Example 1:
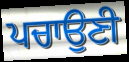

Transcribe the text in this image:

ਪਚਾਉਣੀ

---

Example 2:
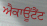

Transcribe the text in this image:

ਐਕਾਊਂਟੈਂਟ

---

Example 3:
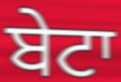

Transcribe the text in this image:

ਬੇਟਾ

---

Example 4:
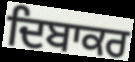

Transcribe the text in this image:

ਦਿਬਾਕਰ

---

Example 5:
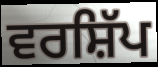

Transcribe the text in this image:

ਵਰਸ਼ਿੱਪ